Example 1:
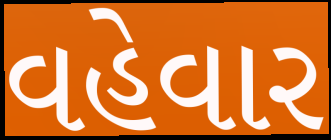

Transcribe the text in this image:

વહેવાર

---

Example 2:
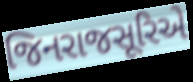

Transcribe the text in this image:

જિનરાજસૂરિએ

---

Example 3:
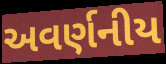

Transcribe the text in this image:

અવર્ણનીય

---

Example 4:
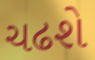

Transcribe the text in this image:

ચઢશે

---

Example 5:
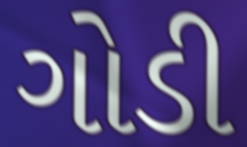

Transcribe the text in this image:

ગોડી